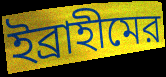
ইব্রাহীমের